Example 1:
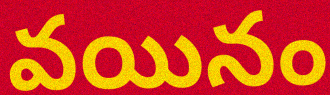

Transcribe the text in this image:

వయినం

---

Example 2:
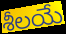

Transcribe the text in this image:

శీలయే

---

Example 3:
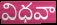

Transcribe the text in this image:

విధవా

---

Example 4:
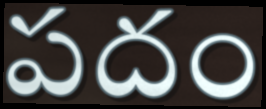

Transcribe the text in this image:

పదం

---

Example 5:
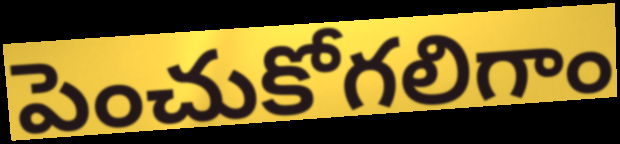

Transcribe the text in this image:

పెంచుకోగలిగాం